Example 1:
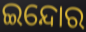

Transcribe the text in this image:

ଇନ୍ଦୋର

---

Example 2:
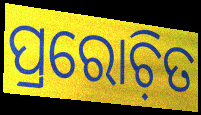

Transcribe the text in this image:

ପ୍ରରୋଚ଼ିତ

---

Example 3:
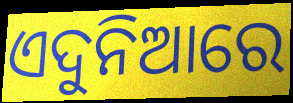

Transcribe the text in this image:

ଏଦୁନିଆରେ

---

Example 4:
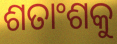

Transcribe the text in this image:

ଶତାଂଶକୁ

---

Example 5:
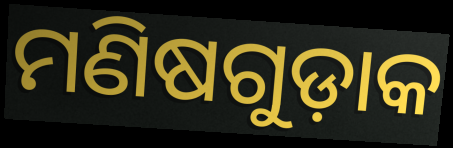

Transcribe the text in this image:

ମଣିଷଗୁଡ଼ାକ